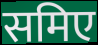
समिए